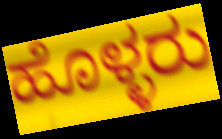
ಹೊಳ್ಳರು